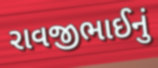
રાવજીભાઈનું